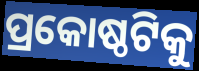
ପ୍ରକୋଷ୍ଠଟିକୁ